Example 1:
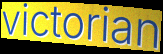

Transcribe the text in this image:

victorian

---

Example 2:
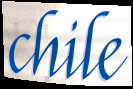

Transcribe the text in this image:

chile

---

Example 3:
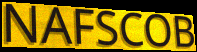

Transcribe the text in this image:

NAFSCOB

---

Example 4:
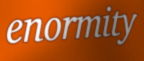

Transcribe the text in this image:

enormity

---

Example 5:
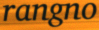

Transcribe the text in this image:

rangno